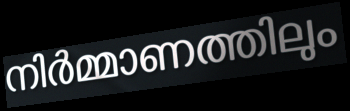
നിർമ്മാണത്തിലും